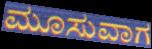
ಮೂಸುವಾಗ